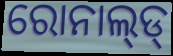
ରୋନାଲ୍‌ଡ୍